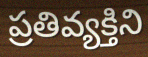
ప్రతివ్యక్తిని